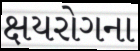
ક્ષયરોગના